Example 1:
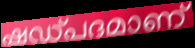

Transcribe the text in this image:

ഷഡ്പദമാണ്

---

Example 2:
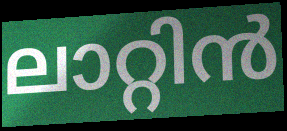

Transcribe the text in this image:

ലാറ്റിൻ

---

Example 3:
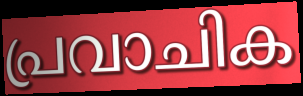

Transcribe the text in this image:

പ്രവാചിക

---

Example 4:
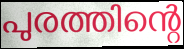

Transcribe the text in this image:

പുരത്തിന്റെ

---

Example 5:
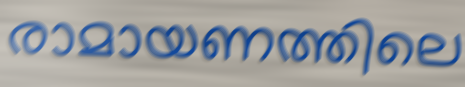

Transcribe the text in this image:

രാമായണത്തിലെ